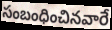
సంబంధించినవారే